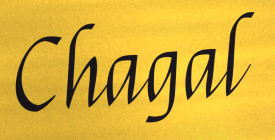
Chagal